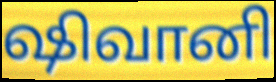
ஷிவானி